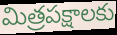
మిత్రపక్షాలకు